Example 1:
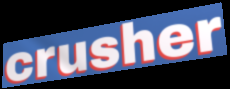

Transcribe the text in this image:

crusher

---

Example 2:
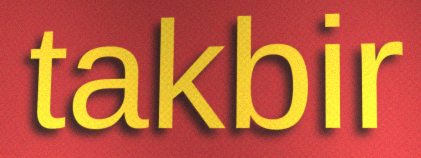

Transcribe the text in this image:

takbir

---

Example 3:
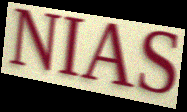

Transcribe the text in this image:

NIAS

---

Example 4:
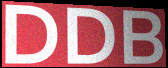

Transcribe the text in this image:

DDB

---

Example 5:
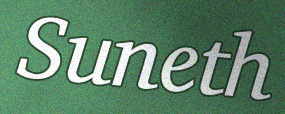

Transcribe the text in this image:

Suneth